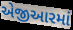
એજીઆરમાં